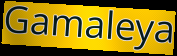
Gamaleya